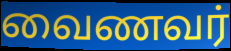
வைணவர்